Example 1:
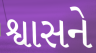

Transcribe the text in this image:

શ્વાસને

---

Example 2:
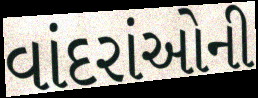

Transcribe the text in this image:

વાંદરાંઓની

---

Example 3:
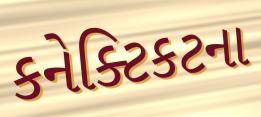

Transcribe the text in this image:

કનેક્ટિકટના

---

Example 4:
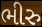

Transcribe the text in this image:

ભીરુ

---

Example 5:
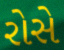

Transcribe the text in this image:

રોસે